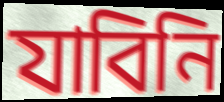
যাবিনি